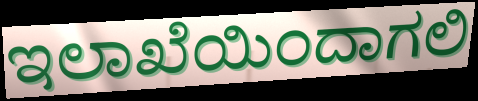
ಇಲಾಖೆಯಿಂದಾಗಲಿ